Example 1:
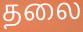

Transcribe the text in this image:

தலை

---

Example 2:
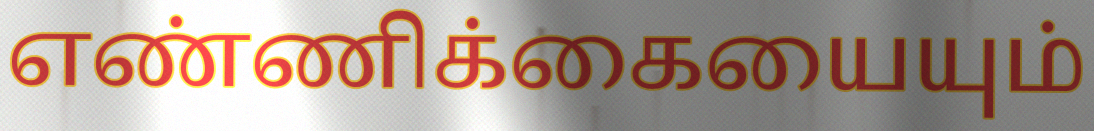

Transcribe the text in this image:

எண்ணிக்கையையும்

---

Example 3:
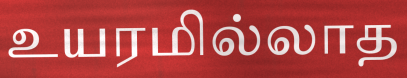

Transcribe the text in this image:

உயரமில்லாத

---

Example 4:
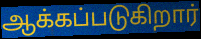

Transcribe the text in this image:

ஆக்கப்படுகிறார்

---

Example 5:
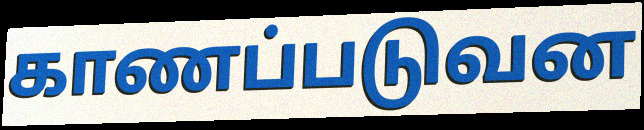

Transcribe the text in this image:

காணப்படுவன